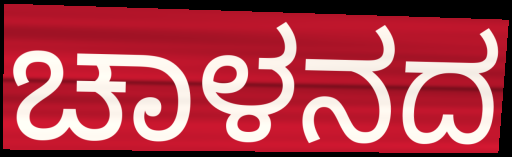
ಚಾಳನದ